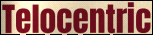
Telocentric